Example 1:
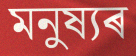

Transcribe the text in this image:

মনুষ্যৰ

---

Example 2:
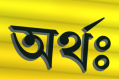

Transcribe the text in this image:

অৰ্থঃ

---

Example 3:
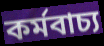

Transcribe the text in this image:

কৰ্মবাচ্য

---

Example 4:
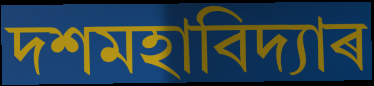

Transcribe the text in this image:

দশমহাবিদ্যাৰ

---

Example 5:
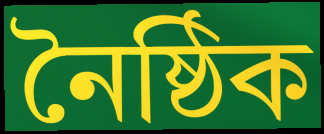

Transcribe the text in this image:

নৈষ্ঠিক